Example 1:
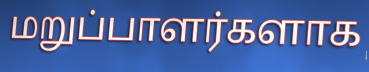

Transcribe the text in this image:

மறுப்பாளர்களாக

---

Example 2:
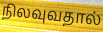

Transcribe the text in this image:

நிலவுவதால்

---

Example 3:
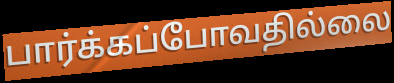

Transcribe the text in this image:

பார்க்கப்போவதில்லை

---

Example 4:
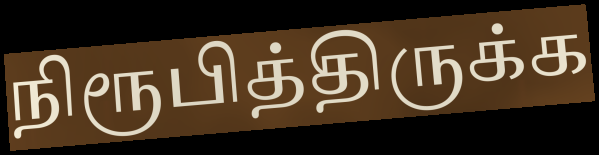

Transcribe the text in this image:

நிரூபித்திருக்க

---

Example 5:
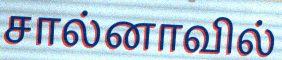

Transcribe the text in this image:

சால்னாவில்